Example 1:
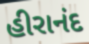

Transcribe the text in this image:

હીરાનંદ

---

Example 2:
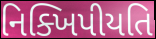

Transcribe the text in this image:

નિક્ખિપીયતિ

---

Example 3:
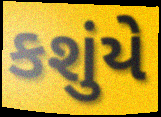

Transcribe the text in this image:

કશુંયે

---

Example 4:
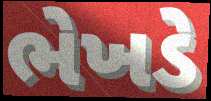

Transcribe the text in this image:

ભેખડે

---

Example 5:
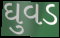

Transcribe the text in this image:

ઘુવડ